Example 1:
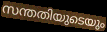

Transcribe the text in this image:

സന്തതിയുടെയും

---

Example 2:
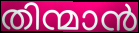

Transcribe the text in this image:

തിന്മാൻ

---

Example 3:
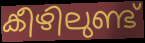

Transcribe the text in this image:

കീഴിലുണ്ട്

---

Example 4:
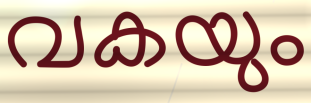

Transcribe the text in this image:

വകയും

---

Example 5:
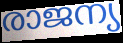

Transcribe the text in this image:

രാജന്യ